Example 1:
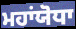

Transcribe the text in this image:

ਮਹਾਂਯੋਧਾ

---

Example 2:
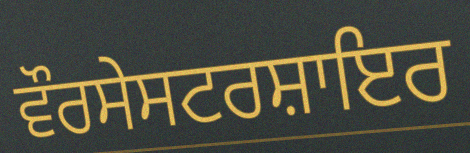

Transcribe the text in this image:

ਵੌਰਸੇਸਟਰਸ਼ਾਇਰ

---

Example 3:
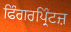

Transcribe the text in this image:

ਫਿੰਗਰਪ੍ਰਿੰਟਜ਼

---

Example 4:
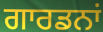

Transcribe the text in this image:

ਗਾਰਡਨਾਂ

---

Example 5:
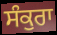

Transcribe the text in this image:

ਸੰਕੁਰਾ